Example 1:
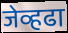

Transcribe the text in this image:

जेव्हढा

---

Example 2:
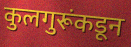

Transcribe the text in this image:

कुलगुरूंकडून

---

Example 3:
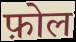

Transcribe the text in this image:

फ़ोल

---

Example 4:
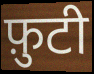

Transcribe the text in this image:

फ़ुटी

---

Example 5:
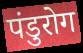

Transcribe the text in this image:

पंडुरोग